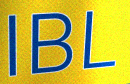
IBL